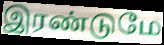
இரண்டுமே